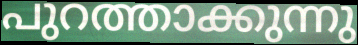
പുറത്താക്കുന്നു